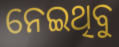
ନେଇଥିବୁ